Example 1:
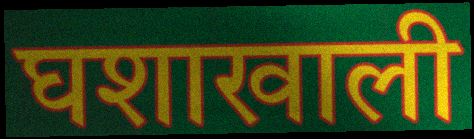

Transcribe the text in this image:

घशाखाली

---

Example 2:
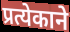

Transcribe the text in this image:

प्रत्येकाने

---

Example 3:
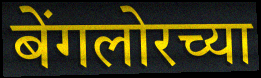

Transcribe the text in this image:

बेंगलोरच्या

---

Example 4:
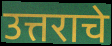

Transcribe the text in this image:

उत्तराचे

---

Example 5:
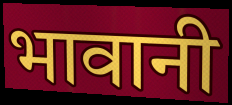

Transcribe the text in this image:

भावानी